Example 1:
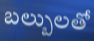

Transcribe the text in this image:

బల్బులతో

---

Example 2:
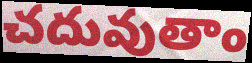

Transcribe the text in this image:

చదువుతాం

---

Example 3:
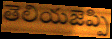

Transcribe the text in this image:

తెలియజెప్పి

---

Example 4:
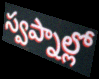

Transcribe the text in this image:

స్వప్నాల్లో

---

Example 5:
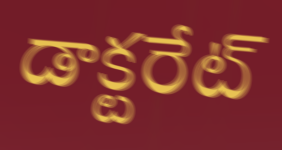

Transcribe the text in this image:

డాక్టరేట్